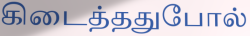
கிடைத்ததுபோல்